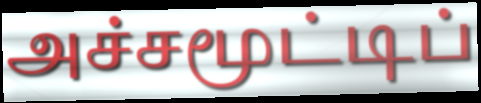
அச்சமூட்டிப்